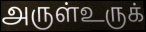
அருள்உருக்